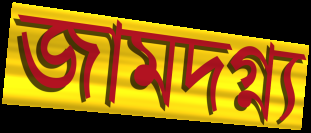
জামদগ্ন্য